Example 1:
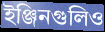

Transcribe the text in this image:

ইঞ্জিনগুলিও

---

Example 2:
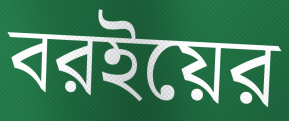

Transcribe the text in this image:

বরইয়ের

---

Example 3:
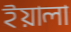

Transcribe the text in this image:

ইয়ালা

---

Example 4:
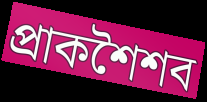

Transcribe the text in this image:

প্রাকশৈশব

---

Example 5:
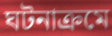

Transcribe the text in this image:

ঘটনাক্রমে